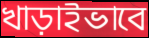
খাড়াইভাবে